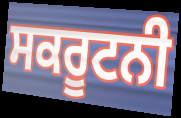
ਸਕਰੂਟਨੀ